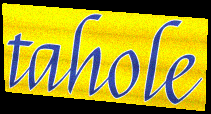
tahole